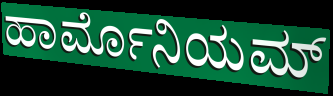
ಹಾರ್ಮೊನಿಯಮ್